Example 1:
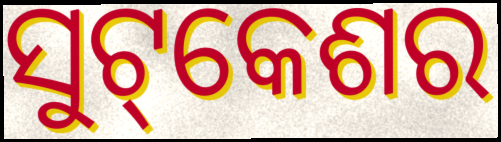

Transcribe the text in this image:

ସୁଟ୍‌କେଶର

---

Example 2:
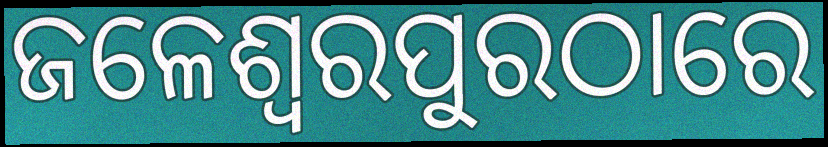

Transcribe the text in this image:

ଜଳେଶ୍ୱରପୁରଠାରେ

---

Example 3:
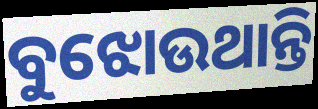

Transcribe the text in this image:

ବୁଝୋଉଥାନ୍ତି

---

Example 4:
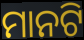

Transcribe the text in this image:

ମାନଟି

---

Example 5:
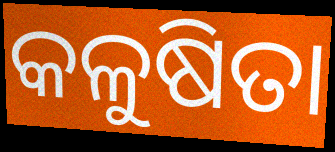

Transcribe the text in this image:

କଳୁଷିତା